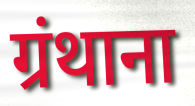
ग्रंथाना